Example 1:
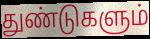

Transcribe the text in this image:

துண்டுகளும்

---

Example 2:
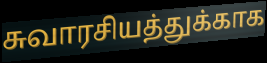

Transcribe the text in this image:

சுவாரசியத்துக்காக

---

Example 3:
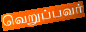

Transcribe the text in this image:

வெறுப்பவர்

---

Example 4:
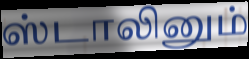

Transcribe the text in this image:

ஸ்டாலினும்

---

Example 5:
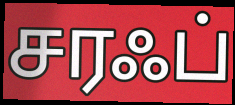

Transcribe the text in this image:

சரஃப்